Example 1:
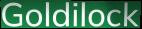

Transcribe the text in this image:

Goldilock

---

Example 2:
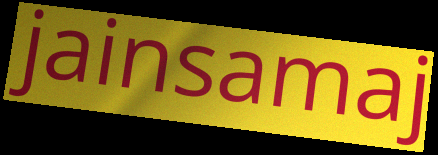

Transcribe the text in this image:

jainsamaj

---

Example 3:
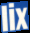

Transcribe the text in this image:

lix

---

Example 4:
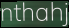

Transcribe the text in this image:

nthahj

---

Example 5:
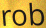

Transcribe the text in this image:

rob